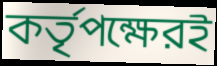
কর্তৃপক্ষেরই